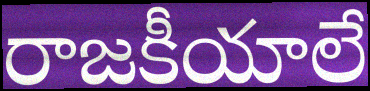
రాజకీయాలే